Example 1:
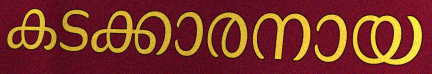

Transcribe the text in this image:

കടക്കാരനായ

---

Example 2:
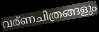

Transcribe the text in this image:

വര്ണചിത്രങ്ങളും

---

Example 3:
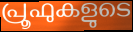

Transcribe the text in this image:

പ്രൂഫുകളുടെ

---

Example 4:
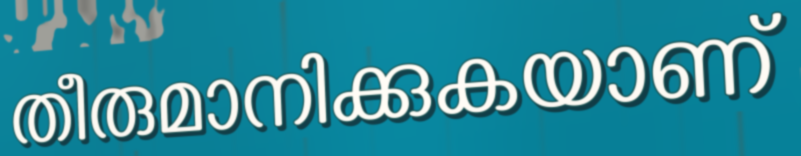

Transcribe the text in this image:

തീരുമാനിക്കുകയാണ്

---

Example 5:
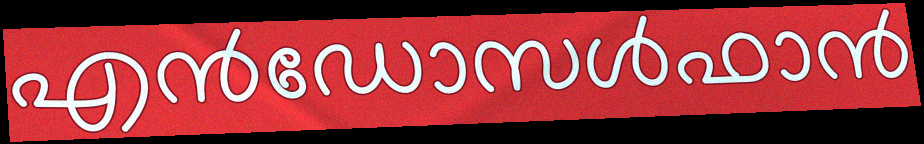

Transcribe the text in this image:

എൻഡോസൾഫാൻ